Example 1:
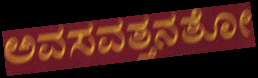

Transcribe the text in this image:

ಅವಸವತ್ತನತೋ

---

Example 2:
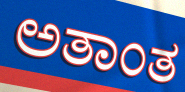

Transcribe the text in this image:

ಅತಾಂತ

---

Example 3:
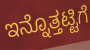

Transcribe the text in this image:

ಇನ್ನೊತ್ತಟ್ಟಿಗೆ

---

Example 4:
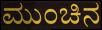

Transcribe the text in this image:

ಮುಂಚಿನ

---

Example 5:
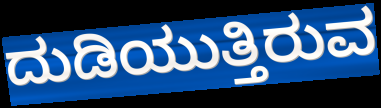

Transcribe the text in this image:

ದುಡಿಯುತ್ತಿರುವ